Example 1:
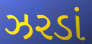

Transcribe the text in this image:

ઝરડાં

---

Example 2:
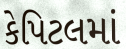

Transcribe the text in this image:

કેપિટલમાં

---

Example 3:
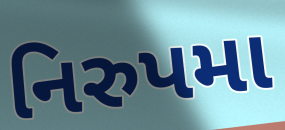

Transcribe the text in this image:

નિરુપમા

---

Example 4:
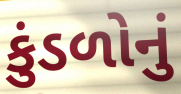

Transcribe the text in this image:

કુંડળોનું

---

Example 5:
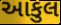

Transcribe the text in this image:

આકુલ